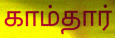
காம்தார்